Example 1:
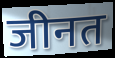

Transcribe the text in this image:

जीनत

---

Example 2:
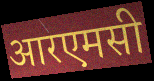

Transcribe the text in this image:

आरएमसी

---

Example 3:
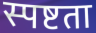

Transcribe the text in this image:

स्पष्टता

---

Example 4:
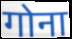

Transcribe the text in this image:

गोना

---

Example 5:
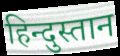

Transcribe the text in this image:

हिन्दुस्तान